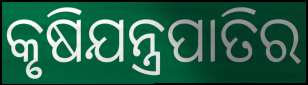
କୃଷିଯନ୍ତ୍ରପାତିର